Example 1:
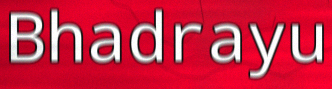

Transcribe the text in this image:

Bhadrayu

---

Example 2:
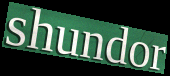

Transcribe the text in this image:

shundor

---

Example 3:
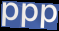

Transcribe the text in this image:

ppp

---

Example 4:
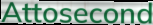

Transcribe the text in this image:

Attosecond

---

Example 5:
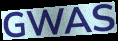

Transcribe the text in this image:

GWAS